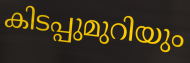
കിടപ്പുമുറിയും